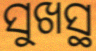
ସୁଖସ୍ଥ